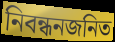
নিবন্ধনজনিত